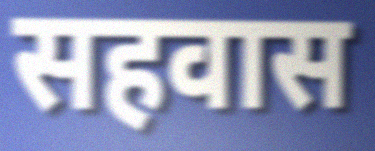
सहवास